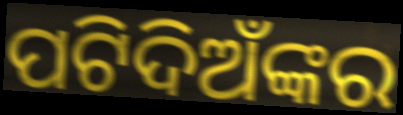
ପଟିଦିଅଁଙ୍କର